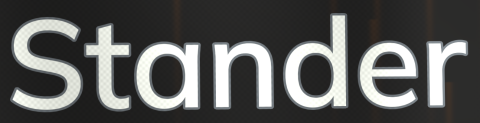
Stander